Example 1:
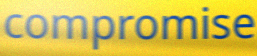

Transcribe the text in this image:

compromise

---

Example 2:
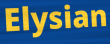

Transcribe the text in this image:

Elysian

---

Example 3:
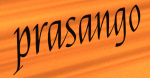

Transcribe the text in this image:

prasango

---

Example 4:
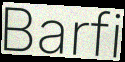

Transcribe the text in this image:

Barfi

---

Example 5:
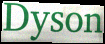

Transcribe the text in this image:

Dyson